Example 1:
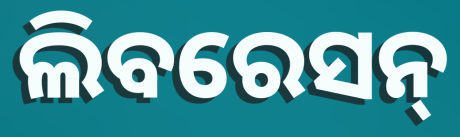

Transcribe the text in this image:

ଲିବରେସନ୍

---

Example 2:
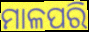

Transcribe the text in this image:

ମାଳପରି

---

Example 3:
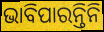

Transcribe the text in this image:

ଭାବିପାରନ୍ତିନି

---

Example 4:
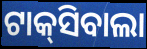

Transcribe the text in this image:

ଟାକ୍‌ସିବାଲା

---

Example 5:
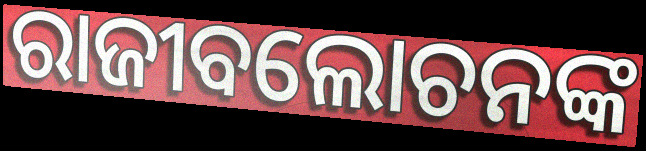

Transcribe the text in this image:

ରାଜୀବଲୋଚନଙ୍କ